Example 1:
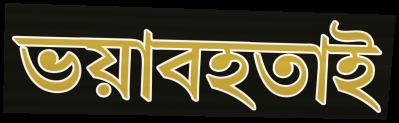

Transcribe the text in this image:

ভয়াবহতাই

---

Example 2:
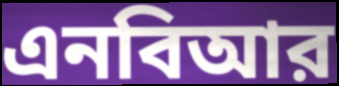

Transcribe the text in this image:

এনবিআর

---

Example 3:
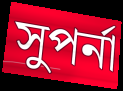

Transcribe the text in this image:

সুপর্না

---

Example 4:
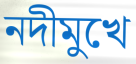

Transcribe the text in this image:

নদীমুখে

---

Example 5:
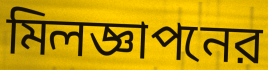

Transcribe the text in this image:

মিলজ্ঞাপনের